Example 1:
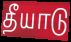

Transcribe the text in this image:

தீயாடு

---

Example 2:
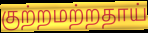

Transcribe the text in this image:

குற்றமற்றதாய்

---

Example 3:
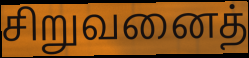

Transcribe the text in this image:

சிறுவனைத்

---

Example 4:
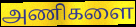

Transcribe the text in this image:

அணிகளை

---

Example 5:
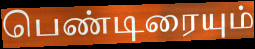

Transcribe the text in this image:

பெண்டிரையும்